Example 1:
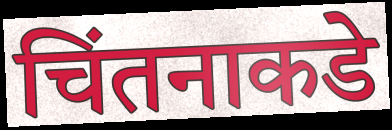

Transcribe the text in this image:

चिंतनाकडे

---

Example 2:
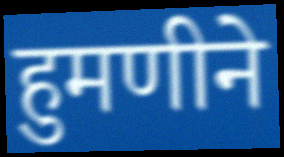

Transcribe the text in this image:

हुमणीने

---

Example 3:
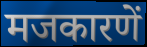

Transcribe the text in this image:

मजकारणें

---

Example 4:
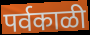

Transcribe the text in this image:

पर्वकाळी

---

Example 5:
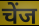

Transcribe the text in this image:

चेंज